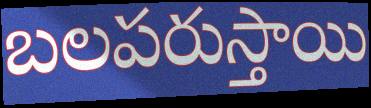
బలపరుస్తాయి